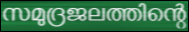
സമുദ്രജലത്തിന്റെ